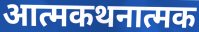
आत्मकथनात्मक